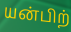
யன்பிற்